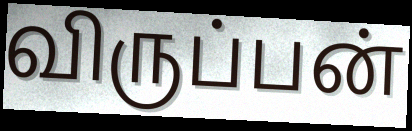
விருப்பன்